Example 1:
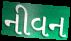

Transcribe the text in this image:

નીવન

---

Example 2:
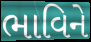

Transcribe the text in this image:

ભાવિને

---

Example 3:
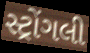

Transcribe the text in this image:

સ્ટ્રોંગલી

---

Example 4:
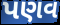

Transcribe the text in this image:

પણવ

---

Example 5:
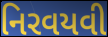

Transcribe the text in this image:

નિરવયવી